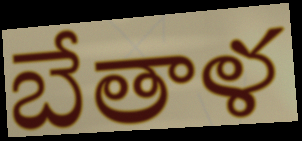
బేతాళ